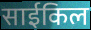
साईकिल